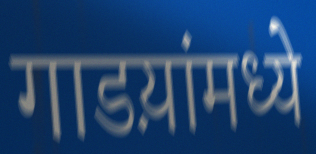
गाडय़ांमध्ये